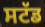
ਸਟੱਡ